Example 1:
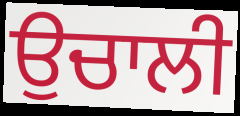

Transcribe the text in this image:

ਉਚਾਲੀ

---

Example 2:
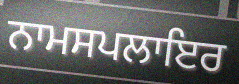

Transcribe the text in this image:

ਨਾਮਸਪਲਾਇਰ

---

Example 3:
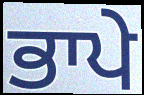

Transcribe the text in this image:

ਭਾਪੇ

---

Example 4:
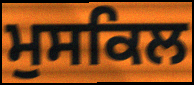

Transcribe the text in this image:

ਮੁਸਕਿਲ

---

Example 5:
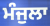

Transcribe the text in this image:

ਮੰਜੁਲਾ